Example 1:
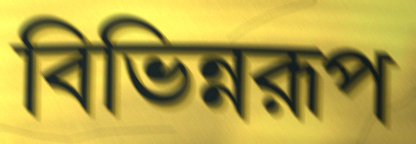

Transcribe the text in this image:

বিভিন্নরূপ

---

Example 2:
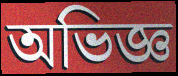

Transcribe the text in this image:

অভিজ্ঞ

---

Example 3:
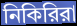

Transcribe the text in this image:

নিকিরিরা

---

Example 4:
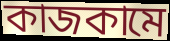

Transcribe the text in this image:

কাজকামে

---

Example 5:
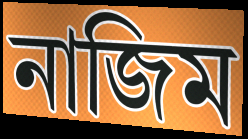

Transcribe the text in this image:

নাজিম